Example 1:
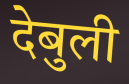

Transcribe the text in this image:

देबुली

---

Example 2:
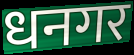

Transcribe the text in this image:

धनगर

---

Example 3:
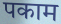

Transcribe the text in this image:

पकाम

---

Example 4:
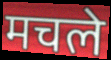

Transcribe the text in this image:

मचले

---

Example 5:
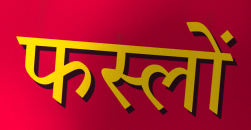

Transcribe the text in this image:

फस्लों